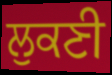
ਲੁਕਣੀ